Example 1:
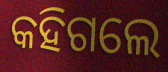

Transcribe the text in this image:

କହିଗଲେ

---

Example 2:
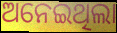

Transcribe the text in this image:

ଅନେଇଥିଲା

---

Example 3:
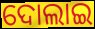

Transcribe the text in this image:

ଦୋଲାଇ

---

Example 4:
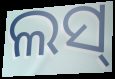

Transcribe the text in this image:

ଲସ୍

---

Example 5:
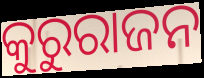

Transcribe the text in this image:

କୁରୁରାଜନ